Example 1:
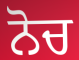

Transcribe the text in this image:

ਨੋਚ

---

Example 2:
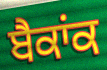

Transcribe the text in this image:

ਬੈਕਾਂਕ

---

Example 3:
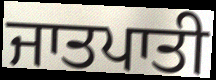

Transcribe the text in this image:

ਜਾਤਪਾਤੀ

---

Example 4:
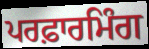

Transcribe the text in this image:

ਪਰਫ਼ਾਰਮਿੰਗ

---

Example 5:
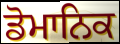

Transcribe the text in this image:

ਡੋਮਾਨਿਕ